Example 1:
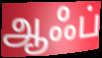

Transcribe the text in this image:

ஆஃப்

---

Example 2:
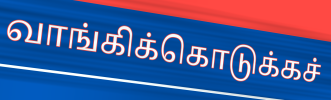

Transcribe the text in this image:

வாங்கிக்கொடுக்கச்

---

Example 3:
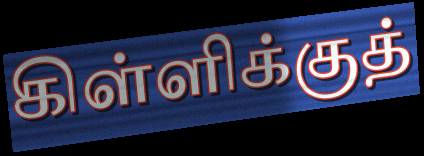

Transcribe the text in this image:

கிள்ளிக்குத்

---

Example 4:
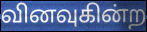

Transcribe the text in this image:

வினவுகின்ற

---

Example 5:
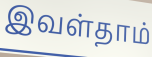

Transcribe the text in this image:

இவள்தாம்